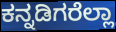
ಕನ್ನಡಿಗರೆಲ್ಲಾ